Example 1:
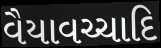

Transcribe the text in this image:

વૈયાવચ્ચાદિ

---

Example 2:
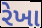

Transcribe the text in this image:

રેખા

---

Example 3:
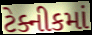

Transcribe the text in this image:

ટેક્નીકમાં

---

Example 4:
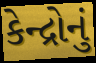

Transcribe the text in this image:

કેન્દ્રોનું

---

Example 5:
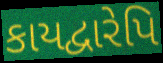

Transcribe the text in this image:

કાયદ્વારેપિ